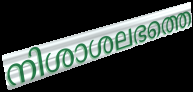
നിശാശലഭത്തെ